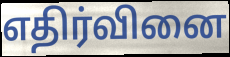
எதிர்வினை